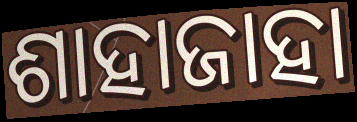
ଶାହାଜାହା